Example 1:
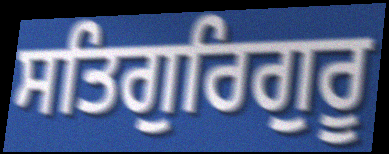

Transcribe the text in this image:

ਸਤਿਗੁਰਿਗੁਰੂ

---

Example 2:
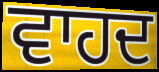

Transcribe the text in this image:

ਵਾਹਦ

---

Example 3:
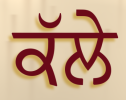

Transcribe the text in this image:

ਕੱਲੇ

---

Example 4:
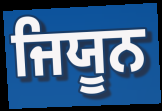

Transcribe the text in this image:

ਜਿਯੂਨ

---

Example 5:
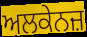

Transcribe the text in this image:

ਅਲਕੇਨਜ਼